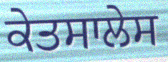
ਕੇਤਸਾਲੇਸ